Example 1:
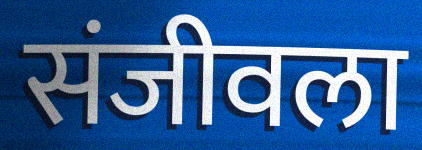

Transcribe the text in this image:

संजीवला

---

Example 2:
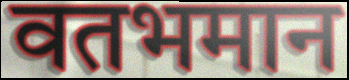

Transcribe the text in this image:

वतभमान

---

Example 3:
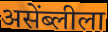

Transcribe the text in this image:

असेंब्लीला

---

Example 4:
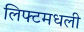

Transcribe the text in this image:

लिफ्टमधली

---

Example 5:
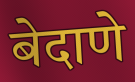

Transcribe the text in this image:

बेदाणे